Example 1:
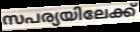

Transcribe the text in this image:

സപര്യയിലേക്ക്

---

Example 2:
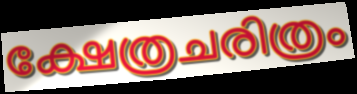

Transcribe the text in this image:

ക്ഷേത്രചരിത്രം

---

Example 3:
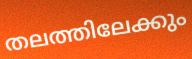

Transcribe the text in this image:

തലത്തിലേക്കും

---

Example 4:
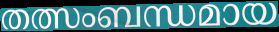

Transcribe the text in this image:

തത്സംബന്ധമായ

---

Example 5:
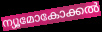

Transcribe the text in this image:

ന്യൂമോകോക്കൽ